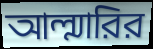
আল্মারির